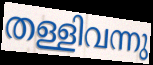
തള്ളിവന്നു